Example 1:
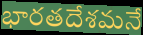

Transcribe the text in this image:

భారతదేశమనే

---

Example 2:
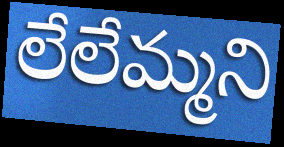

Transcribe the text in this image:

లేలేమ్మని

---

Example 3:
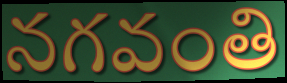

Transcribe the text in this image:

నగవంతి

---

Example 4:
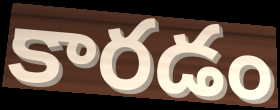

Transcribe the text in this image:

కారడం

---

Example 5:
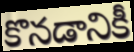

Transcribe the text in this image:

కొనడానికీ